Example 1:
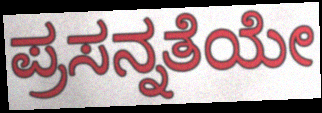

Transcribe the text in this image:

ಪ್ರಸನ್ನತೆಯೇ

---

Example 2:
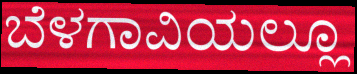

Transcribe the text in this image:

ಬೆಳಗಾವಿಯಲ್ಲೂ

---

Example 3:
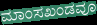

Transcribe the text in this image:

ಮಾಂಸಖಂಡವೂ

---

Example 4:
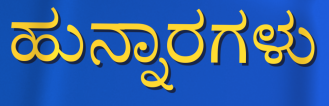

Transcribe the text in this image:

ಹುನ್ನಾರಗಳು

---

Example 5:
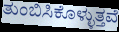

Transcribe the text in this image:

ತುಂಬಿಸಿಕೊಳ್ಳುತ್ತವೆ